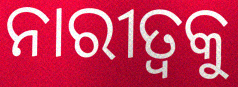
ନାରୀତ୍ୱକୁ